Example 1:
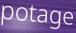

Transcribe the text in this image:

potage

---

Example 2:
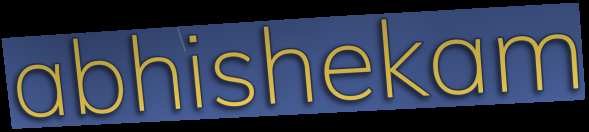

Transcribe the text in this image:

abhishekam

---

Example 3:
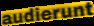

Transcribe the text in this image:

audierunt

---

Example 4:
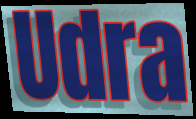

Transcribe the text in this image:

Udra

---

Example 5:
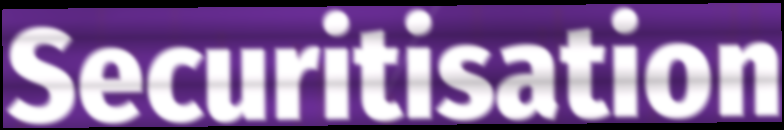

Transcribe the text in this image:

Securitisation